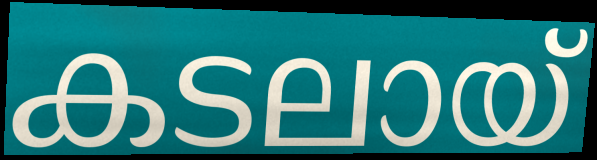
കടലായ്